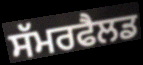
ਸੱਮਰਫੈਲਡ